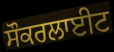
ਸੌਕਰਲਾਈਟ